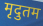
मृदुतम